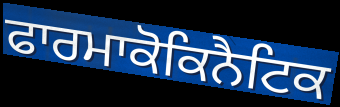
ਫਾਰਮਾਕੋਕਿਨੈਟਿਕ